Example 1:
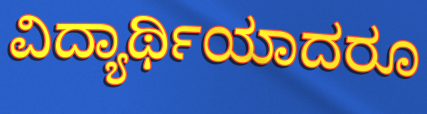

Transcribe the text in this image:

ವಿದ್ಯಾರ್ಥಿಯಾದರೂ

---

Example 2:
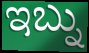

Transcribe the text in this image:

ಇಬ್ನು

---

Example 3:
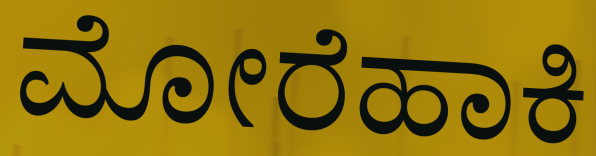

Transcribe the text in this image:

ಮೋರೆಹಾಕಿ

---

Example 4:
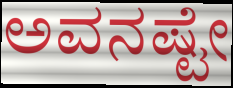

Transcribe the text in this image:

ಅವನಷ್ಟೇ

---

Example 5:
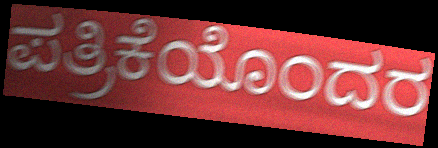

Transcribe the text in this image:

ಪತ್ರಿಕೆಯೊಂದರ